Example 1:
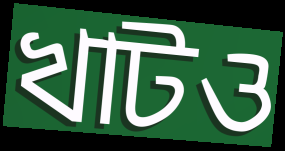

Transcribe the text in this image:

খাটও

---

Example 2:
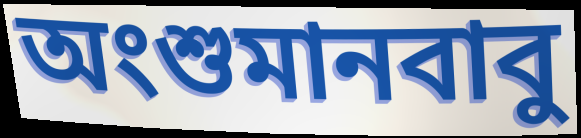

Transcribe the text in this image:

অংশুমানবাবু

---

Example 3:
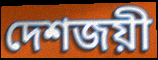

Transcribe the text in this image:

দেশজয়ী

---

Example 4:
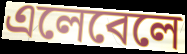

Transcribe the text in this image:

এলেবেলে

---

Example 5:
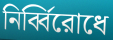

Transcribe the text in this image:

নির্ব্বিরোধে